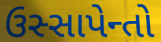
ઉસ્સાપેન્તો